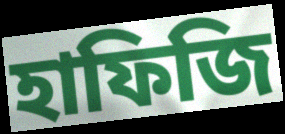
হাফিজি